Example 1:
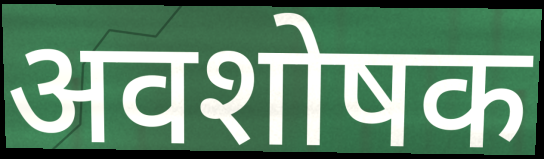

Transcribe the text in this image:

अवशोषक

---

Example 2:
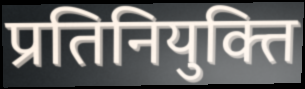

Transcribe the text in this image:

प्रतिनियुक्ति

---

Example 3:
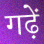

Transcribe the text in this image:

गढ़ें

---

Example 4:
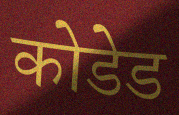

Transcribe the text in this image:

कोडेड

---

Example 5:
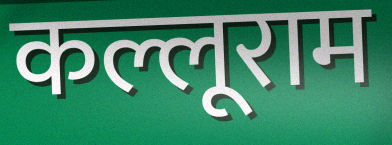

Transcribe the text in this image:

कल्लूराम